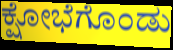
ಕ್ಷೋಭೆಗೊಂಡು